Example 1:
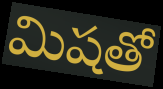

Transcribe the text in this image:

మిషతో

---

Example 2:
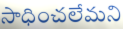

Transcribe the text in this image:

సాధించలేమని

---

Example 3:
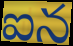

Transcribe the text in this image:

ఐన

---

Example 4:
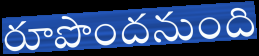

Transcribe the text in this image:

రూపొందనుంది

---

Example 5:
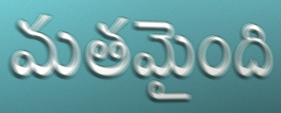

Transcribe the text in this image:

మతమైంది